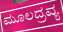
ಮೂಲದ್ರವ್ಯ